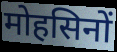
मोहसिनों